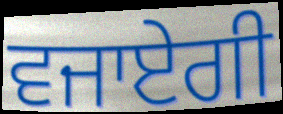
ਵਜਾਏਗੀ